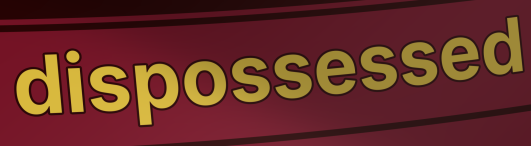
dispossessed